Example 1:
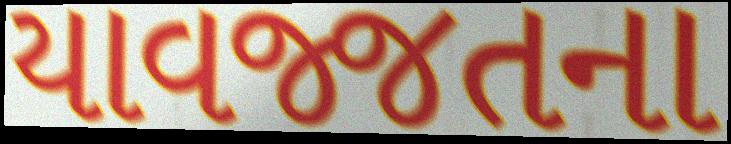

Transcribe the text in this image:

યાવજ્જતના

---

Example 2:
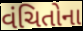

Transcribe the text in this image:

વંચિતોના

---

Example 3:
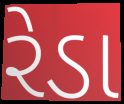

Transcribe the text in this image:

રેડા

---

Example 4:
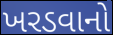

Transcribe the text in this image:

ખરડવાનો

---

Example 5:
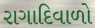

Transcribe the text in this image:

રાગાદિવાળો